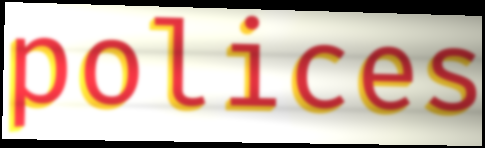
polices